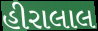
હીરાલાલ